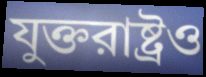
যুক্তরাষ্ট্রও